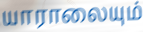
யாராலையும்